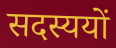
सदस्ययों